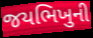
જયભિખુની